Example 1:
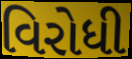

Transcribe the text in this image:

વિરોધી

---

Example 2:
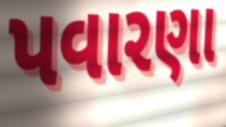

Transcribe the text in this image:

પવારણા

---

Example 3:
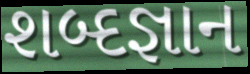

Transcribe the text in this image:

શબ્દજ્ઞાન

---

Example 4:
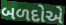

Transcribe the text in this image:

બળદોએ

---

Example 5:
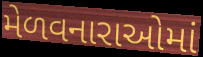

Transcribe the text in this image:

મેળવનારાઓમાં